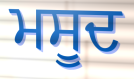
ਮਸੂਦ